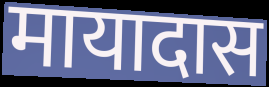
मायादास